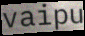
vaipu